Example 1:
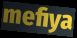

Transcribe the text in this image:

mefiya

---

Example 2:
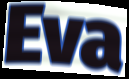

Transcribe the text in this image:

Eva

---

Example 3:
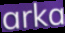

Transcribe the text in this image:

arka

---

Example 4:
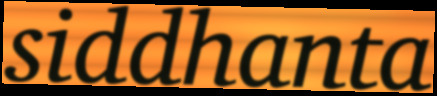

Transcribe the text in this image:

siddhanta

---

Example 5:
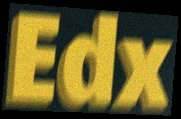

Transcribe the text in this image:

Edx